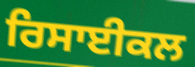
ਰਿਸਾਈਕਲ